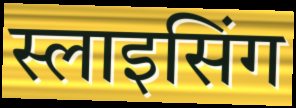
स्लाइसिंग